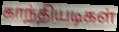
காந்தியடிகள்